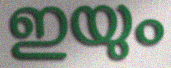
ഇയും